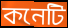
কনেটি